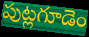
పుట్లగూడెం